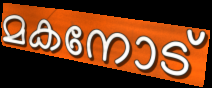
മകനോട്